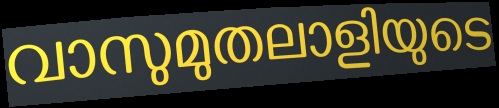
വാസുമുതലാളിയുടെ